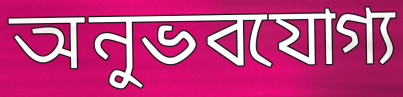
অনুভবযোগ্য